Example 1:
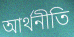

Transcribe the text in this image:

আর্থনীতি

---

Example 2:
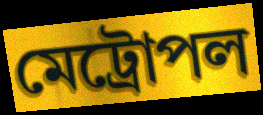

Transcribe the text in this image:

মেট্রোপল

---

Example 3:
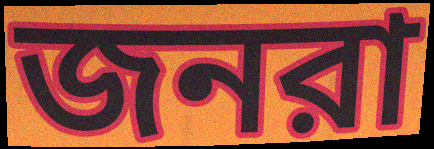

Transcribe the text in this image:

জনরা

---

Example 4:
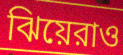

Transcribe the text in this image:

ঝিয়েরাও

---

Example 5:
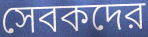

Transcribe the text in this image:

সেবকদের